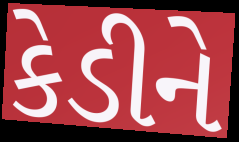
કેડીને